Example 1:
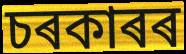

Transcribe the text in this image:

চৰকাৰৰ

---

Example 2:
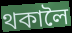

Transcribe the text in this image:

থকালৈ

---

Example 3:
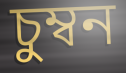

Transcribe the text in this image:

চুম্বন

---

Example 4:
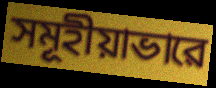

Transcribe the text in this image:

সমূহীয়াভাৱে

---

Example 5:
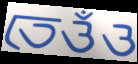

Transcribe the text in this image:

তেওঁও